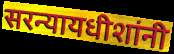
सरन्यायधीशांनी